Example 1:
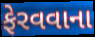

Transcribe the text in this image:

ફેરવવાના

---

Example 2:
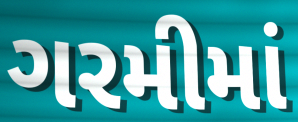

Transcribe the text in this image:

ગરમીમાં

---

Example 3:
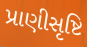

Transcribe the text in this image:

પ્રાણીસૃષ્ટિ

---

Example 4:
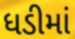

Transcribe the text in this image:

ધડીમાં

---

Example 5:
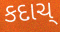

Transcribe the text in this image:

કદાચ્